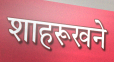
शाहरूखने